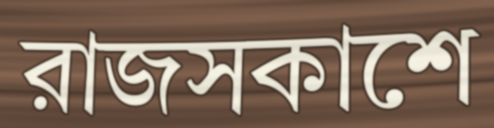
রাজসকাশে